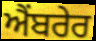
ਐਂਬਰੇਰ